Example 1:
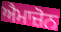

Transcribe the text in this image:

ਐਮਾਜ਼ੋਨ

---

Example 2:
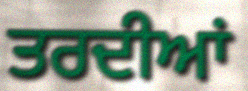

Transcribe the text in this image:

ਤਰਦੀਆਂ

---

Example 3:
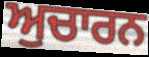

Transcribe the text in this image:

ਅੁਚਾਰਨ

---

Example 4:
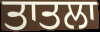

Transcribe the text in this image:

ਤਾਤਲਾ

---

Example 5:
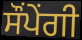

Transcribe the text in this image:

ਸੌਂਪੇਂਗੀ